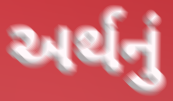
અર્થનું